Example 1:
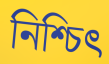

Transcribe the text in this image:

নিশ্চিৎ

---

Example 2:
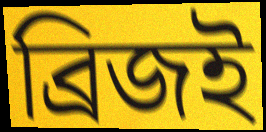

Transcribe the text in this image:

ব্রিজই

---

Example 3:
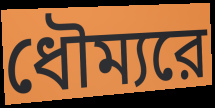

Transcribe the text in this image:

ধৌম্যরে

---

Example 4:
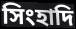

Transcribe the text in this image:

সিংহাদি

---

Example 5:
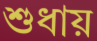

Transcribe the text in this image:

শুধায়